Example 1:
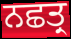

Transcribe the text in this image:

ਨਛਤ੍ਰ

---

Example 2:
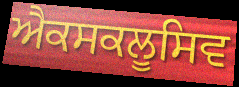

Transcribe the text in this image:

ਐਕਸਕਲੂਸਿਵ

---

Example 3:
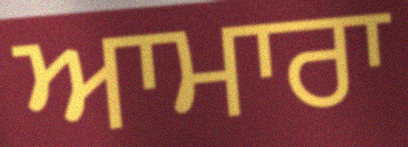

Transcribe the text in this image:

ਆਮਾਰਾ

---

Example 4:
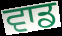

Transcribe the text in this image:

ਵਾਡ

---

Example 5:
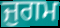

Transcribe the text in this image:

ਜੁਗਮ